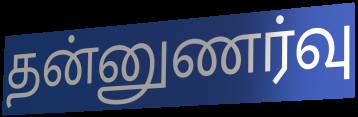
தன்னுணர்வு